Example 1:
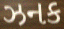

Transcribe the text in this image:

ઝનક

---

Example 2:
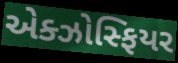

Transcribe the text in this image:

એક્ઝોસ્ફિયર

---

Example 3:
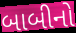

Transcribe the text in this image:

બાબીનો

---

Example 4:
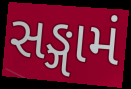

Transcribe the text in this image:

સઙ્ગામં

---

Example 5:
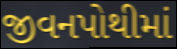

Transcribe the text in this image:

જીવનપોથીમાં